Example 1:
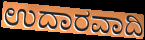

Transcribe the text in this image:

ಉದಾರವಾದಿ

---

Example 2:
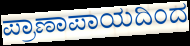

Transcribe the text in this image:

ಪ್ರಾಣಾಪಾಯದಿಂದ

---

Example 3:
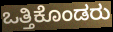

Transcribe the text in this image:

ಒತ್ತಿಕೊಂಡರು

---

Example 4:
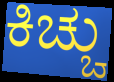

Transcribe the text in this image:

ಕಿಚ್ಚು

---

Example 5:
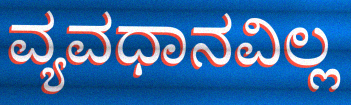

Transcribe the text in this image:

ವ್ಯವಧಾನವಿಲ್ಲ